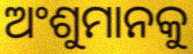
ଅଂଶୁମାନକୁ